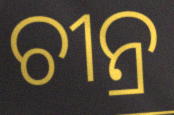
ଚୀନ୍ର